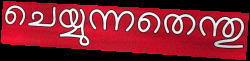
ചെയ്യുന്നതെന്തു